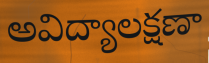
అవిద్యాలక్షణా